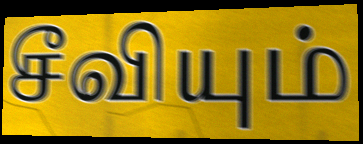
சீவியும்